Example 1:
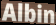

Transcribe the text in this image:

Albin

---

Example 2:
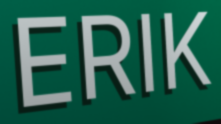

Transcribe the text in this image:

ERIK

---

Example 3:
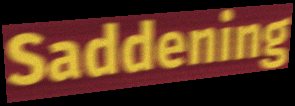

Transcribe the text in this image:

Saddening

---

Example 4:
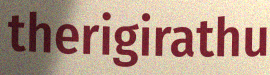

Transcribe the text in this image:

therigirathu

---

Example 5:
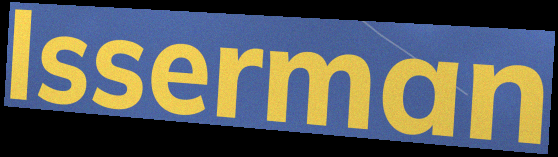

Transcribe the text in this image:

Isserman